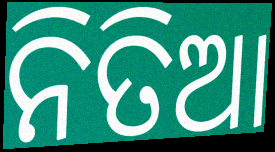
ନିତିଆ